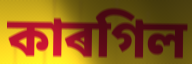
কাৰগিল